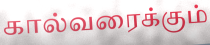
கால்வரைக்கும்